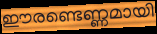
ഈരണ്ടെണ്ണമായി